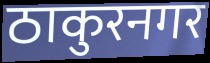
ठाकुरनगर